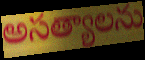
అసత్యాలను